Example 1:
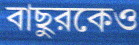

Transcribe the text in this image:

বাছুরকেও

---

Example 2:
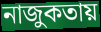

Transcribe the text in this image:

নাজুকতায়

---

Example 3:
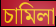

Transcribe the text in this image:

চামিলা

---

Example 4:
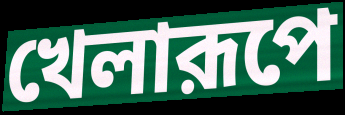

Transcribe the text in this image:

খেলারূপে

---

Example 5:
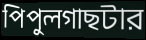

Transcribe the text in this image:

পিপুলগাছটার